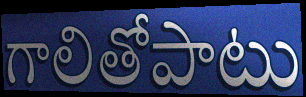
గాలితోపాటు